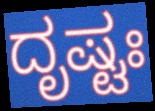
ದೃಷ್ಟಃ